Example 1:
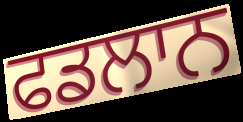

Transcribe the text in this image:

ਫਡਲਾਨ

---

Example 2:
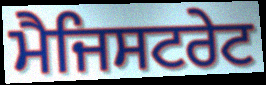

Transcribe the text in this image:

ਮੈਜਿਸਟਰੇਟ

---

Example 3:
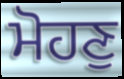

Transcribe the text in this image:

ਮੋਹਣੁ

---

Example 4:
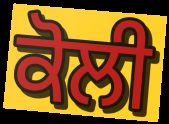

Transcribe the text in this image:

ਕੋਲੀ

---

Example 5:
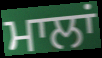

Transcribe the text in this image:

ਮਾਲਾਂ